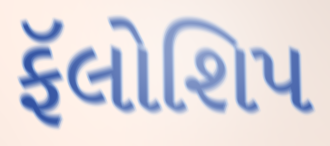
ફૅલોશિપ